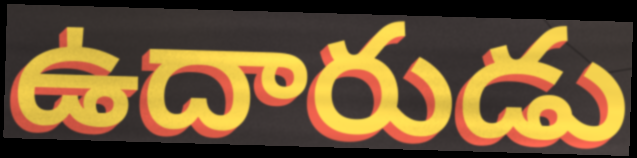
ఉదారుడు